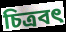
চিত্ৰবৎ